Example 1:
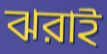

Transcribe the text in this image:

ঝরাই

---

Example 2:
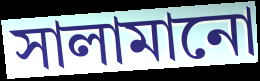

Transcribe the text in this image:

সালামানো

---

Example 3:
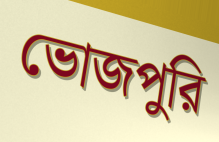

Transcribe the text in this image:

ভোজপুরি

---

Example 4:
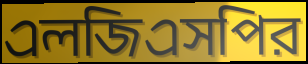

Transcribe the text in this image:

এলজিএসপির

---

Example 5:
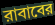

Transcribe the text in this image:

রাবাবের